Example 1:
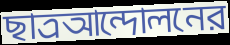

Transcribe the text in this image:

ছাত্রআন্দোলনের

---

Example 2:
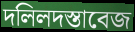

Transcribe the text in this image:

দলিলদস্তাবেজ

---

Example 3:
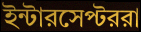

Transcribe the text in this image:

ইন্টারসেপ্টররা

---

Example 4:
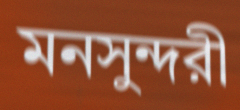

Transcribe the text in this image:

মনসুন্দরী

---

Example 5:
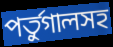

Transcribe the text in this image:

পর্তুগালসহ